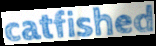
catfished